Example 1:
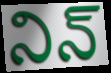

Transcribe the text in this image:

నిన్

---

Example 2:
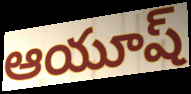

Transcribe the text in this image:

ఆయూష్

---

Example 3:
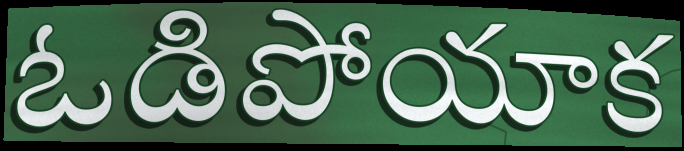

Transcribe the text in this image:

ఓడిపోయాక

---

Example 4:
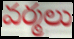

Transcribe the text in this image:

వర్మలు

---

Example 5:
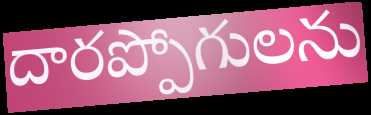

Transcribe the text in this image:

దారప్పోగులను